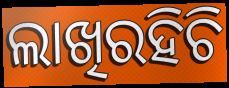
ଲାଖିରହିଚି